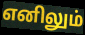
எனிலும்